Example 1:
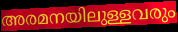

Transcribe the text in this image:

അരമനയിലുള്ളവരും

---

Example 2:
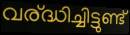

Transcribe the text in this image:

വര്ദ്ധിച്ചിട്ടുണ്ട്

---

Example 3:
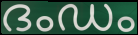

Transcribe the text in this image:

ദംഡം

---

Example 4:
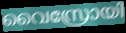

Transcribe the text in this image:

വൈസ്രോയി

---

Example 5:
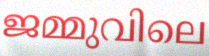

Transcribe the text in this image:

ജമ്മുവിലെ